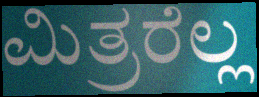
ಮಿತ್ರರೆಲ್ಲ